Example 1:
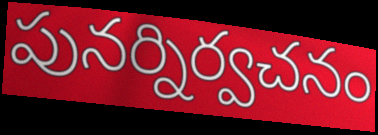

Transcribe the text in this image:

పునర్నిర్వచనం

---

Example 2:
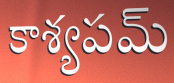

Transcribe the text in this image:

కాశ్యపమ్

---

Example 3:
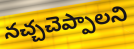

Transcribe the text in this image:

నచ్చచెప్పాలని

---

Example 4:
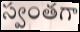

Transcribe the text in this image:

స్వంతగా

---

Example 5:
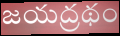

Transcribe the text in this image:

జయద్రథం